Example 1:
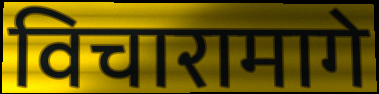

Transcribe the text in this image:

विचारामागे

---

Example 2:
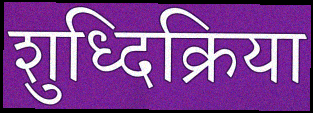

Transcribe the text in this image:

शुध्दिक्रिया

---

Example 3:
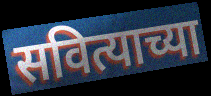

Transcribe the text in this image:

सवित्याच्या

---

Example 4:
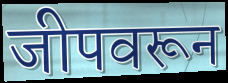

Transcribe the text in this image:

जीपवरून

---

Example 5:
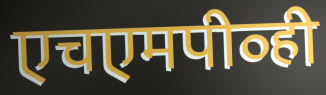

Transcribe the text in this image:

एचएमपीव्ही